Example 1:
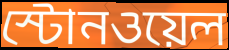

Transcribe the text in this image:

স্টোনওয়েল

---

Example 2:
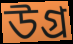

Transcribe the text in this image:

উগ্র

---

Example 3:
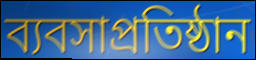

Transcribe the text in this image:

ব্যবসাপ্রতিষ্ঠান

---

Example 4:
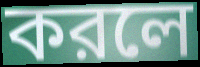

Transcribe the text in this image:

করলে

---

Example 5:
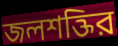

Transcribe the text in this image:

জলশক্তির